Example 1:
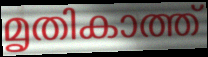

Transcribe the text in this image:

മൃതികാത്ത്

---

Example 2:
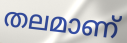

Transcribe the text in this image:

തലമാണ്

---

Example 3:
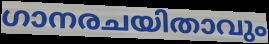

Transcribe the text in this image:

ഗാനരചയിതാവും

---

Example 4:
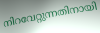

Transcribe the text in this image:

നിറവേറ്റുന്നതിനായി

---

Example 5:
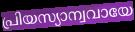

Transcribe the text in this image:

പ്രിയസ്യാന്വവായേ